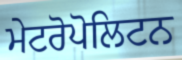
ਮੇਟਰੋਪੋਲਿਟਨ